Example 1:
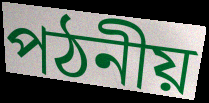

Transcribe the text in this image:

পঠনীয়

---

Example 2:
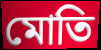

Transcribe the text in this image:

মোতি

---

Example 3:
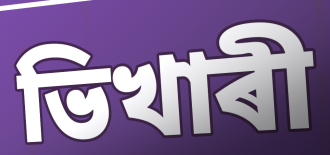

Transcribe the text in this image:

ভিখাৰী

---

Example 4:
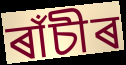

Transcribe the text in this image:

ৰাঁচীৰ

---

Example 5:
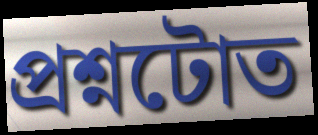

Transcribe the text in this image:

প্ৰশ্নটোত